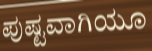
ಪುಷ್ಟವಾಗಿಯೂ